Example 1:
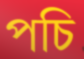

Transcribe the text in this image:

পচি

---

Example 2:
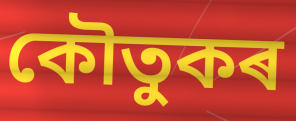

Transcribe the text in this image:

কৌতুকৰ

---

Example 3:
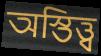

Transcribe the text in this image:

অস্তিত্ত্ব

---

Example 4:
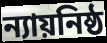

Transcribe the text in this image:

ন্যায়নিষ্ঠ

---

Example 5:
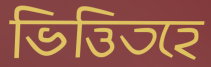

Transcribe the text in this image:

ভিত্তিতহে